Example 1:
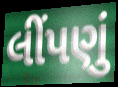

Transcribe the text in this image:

લીંપણું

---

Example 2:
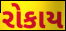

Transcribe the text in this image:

રોકાય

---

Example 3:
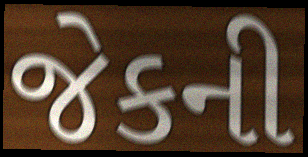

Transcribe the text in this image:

જેકની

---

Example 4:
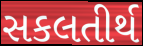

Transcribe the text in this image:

સકલતીર્થ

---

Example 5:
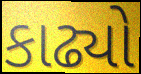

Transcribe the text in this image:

કાઢ્યો